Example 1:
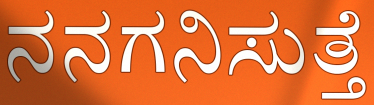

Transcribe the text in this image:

ನನಗನಿಸುತ್ತೆ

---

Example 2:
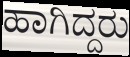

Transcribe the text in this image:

ಹಾಗಿದ್ದರು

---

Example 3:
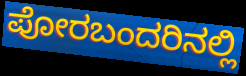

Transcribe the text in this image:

ಪೋರಬಂದರಿನಲ್ಲಿ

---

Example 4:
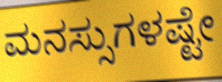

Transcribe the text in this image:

ಮನಸ್ಸುಗಳಷ್ಟೇ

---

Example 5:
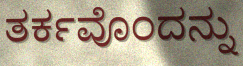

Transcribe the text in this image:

ತರ್ಕವೊಂದನ್ನು